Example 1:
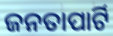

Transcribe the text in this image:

ଜନତାପାର୍ଟି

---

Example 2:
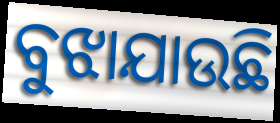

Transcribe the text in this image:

ବୁଝାଯାଉଛି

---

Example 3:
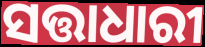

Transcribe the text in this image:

ସତ୍ତାଧାରୀ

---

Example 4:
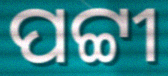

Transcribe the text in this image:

ପଟ୍ଟୀ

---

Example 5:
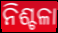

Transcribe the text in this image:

ନିଶ୍ଚଳା